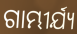
ଗାମ୍ଭୀର୍ଯ୍ୟ